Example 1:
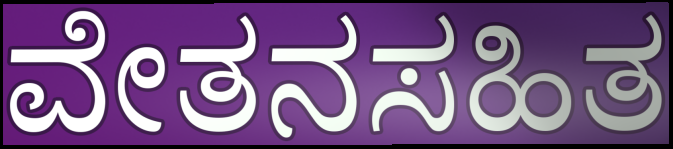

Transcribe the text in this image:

ವೇತನಸಹಿತ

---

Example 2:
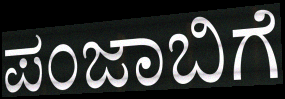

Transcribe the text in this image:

ಪಂಜಾಬಿಗೆ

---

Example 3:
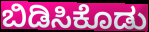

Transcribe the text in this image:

ಬಿಡಿಸಿಕೊಡು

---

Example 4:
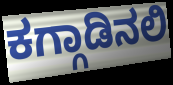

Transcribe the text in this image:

ಕಗ್ಗಾಡಿನಲಿ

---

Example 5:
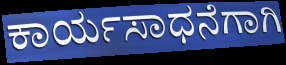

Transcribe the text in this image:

ಕಾರ್ಯಸಾಧನೆಗಾಗಿ